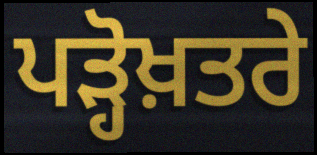
ਪੜ੍ਹੋਖ਼ਤਰੇ